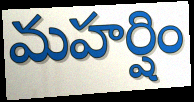
మహర్షిం